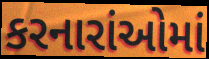
કરનારાંઓમાં